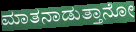
ಮಾತನಾಡುತ್ತಾನೋ